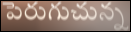
పెరుగుచున్న